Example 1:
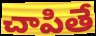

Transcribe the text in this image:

చాపితే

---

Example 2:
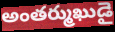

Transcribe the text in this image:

అంతర్ముఖుడై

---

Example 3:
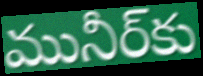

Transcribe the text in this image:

మునీర్‌కు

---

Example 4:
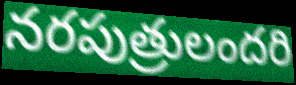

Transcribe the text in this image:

నరపుత్రులందరి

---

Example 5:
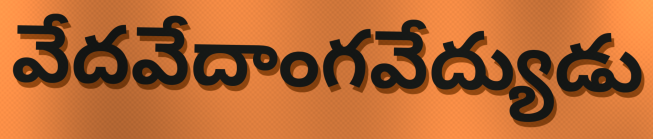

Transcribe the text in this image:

వేదవేదాంగవేద్యుడు